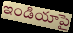
ఇండియాపై